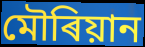
মৌৰিয়ান